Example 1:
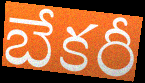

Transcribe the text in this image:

బేకరీ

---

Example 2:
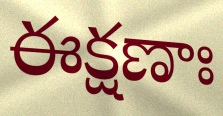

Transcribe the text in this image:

ఈక్షణాః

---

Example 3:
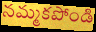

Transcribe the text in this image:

నమ్మకపోండి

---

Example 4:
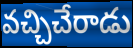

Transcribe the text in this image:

వచ్చిచేరాడు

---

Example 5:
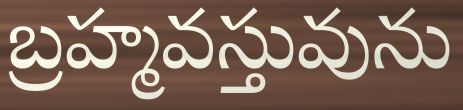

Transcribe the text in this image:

బ్రహ్మవస్తువును